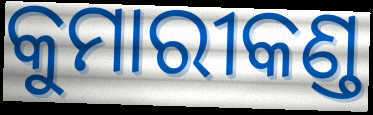
କୁମାରୀକଣ୍ଡ